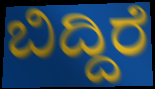
ಬಿದ್ದಿರೆ